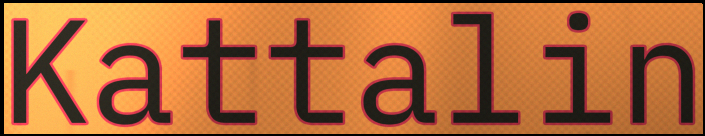
Kattalin